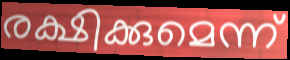
രക്ഷിക്കുമെന്ന്